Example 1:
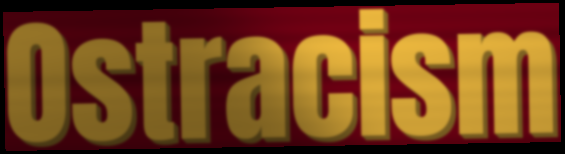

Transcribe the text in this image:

Ostracism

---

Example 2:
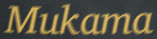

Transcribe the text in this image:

Mukama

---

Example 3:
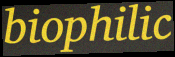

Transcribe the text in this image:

biophilic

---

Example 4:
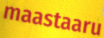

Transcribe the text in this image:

maastaaru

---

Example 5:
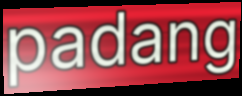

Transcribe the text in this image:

padang